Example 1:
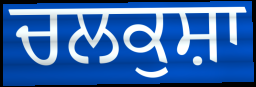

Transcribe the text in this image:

ਚਲਕੁਸ਼ਾ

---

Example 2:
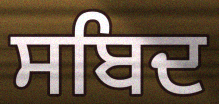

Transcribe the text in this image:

ਸਬਿਦ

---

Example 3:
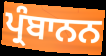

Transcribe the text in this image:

ਪ੍ਰੰਬਾਨਨ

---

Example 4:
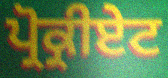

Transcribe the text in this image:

ਪ੍ਰੋਕ੍ਰੀਏਟ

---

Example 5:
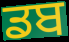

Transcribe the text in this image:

ਡਬ